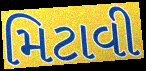
મિટાવી